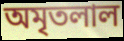
অমৃতলাল